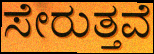
ಸೇರುತ್ತವೆ